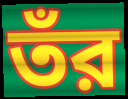
তঁর